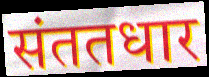
संततधार